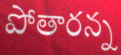
పోతారన్న